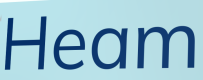
Heam